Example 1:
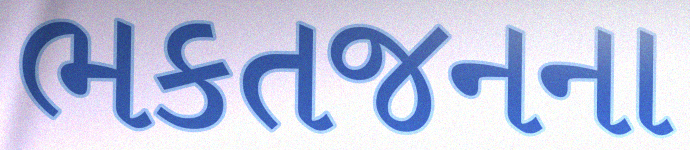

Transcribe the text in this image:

ભકતજનના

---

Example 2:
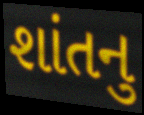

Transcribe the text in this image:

શાંતનુ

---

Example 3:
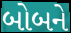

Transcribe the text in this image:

બોબને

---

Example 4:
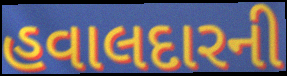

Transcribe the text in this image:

હવાલદારની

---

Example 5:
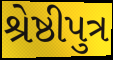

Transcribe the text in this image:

શ્રેષ્ઠીપુત્ર